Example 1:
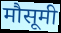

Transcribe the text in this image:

मौसूमी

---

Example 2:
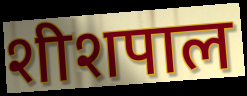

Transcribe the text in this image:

शीशपाल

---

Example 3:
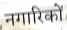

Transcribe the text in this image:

नगारिकों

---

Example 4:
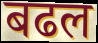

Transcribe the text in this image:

बढल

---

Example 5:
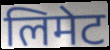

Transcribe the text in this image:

लिमेट